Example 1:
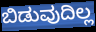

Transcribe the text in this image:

ಬಿಡುವುದಿಲ್ಲ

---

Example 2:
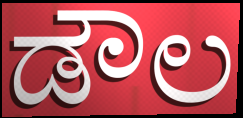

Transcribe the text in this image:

ಡೌಲ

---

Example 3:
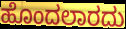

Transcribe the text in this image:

ಹೊಂದಲಾರದು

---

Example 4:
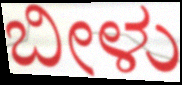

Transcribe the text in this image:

ಬೀಳು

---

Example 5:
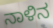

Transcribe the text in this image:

ನಾಳಿನ